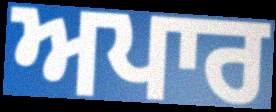
ਅਪਾਰ